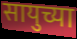
सायुच्या